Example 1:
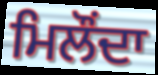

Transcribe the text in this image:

ਮਿਲੌਂਦਾ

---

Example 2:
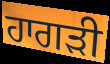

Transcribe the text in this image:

ਹਾਗੜੀ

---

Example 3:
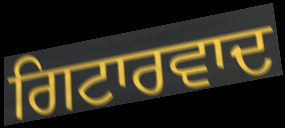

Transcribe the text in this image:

ਗਿਟਾਰਵਾਦ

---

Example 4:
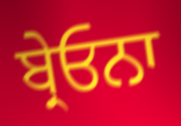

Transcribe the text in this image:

ਬ੍ਰੇਓਨਾ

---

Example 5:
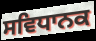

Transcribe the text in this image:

ਸਵਿਧਾਨਕ